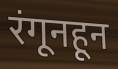
रंगूनहून